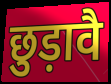
छुड़ावै